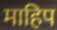
माहिप